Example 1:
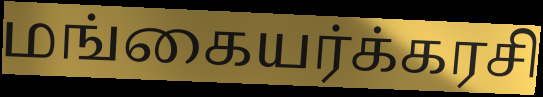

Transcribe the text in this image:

மங்கையர்க்கரசி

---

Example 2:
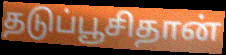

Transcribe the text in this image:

தடுப்பூசிதான்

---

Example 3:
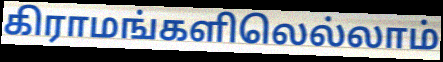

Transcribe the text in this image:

கிராமங்களிலெல்லாம்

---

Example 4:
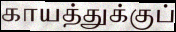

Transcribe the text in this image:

காயத்துக்குப்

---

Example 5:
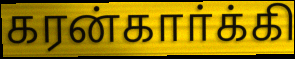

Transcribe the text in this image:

கரன்கார்க்கி